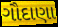
ગૌદાણા